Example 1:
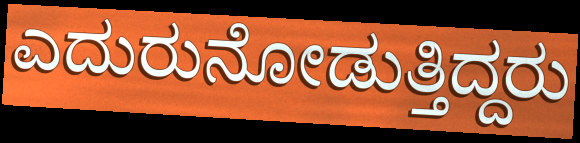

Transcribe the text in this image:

ಎದುರುನೋಡುತ್ತಿದ್ದರು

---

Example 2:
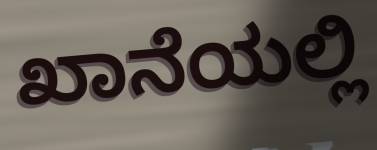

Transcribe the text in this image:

ಖಾನೆಯಲ್ಲಿ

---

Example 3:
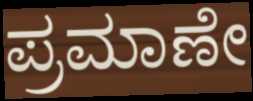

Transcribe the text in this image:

ಪ್ರಮಾಣೇ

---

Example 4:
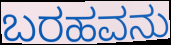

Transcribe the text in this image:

ಬರಹವನು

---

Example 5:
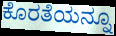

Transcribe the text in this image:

ಕೊರತೆಯನ್ನೂ